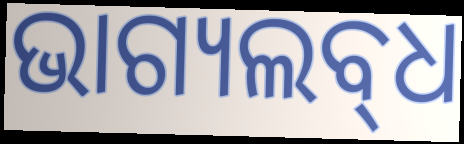
ଭାଗ୍ୟଲବ୍‌ଧ